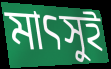
মাৎসুই